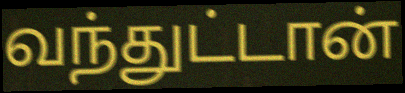
வந்துட்டான்